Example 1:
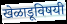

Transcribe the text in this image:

खेळाडूविषयी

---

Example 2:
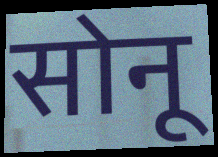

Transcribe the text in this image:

सोनू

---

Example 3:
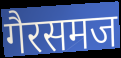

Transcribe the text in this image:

गैरसमज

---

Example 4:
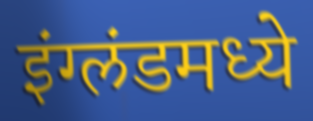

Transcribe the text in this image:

इंग्लंडमध्ये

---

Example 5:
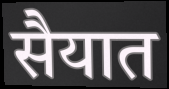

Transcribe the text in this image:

सैयात